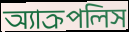
অ্যাক্রপলিস